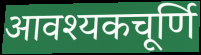
आवश्यकचूर्णि